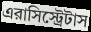
এরাসিস্ট্রেটাস